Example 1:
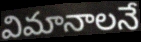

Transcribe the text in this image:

విమానాలనే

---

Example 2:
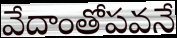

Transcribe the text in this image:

వేదాంతోపవనే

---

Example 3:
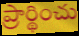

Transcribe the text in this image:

ప్రార్థించు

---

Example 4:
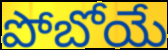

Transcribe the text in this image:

పోబోయే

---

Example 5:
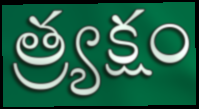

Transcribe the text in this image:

త్ర్యక్షం